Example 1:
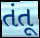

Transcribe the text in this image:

તંતૂ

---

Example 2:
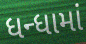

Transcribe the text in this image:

ધન્ધામાં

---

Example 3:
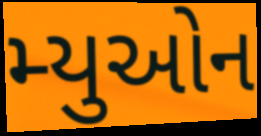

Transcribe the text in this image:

મ્યુઓન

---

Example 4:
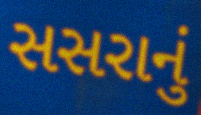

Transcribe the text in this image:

સસરાનું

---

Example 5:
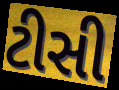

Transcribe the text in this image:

ટીસી